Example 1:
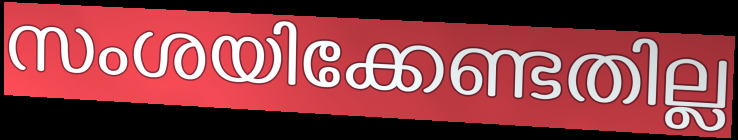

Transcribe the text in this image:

സംശയിക്കേണ്ടതില്ല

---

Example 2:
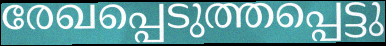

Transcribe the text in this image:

രേഖപ്പെടുത്തപ്പെട്ടു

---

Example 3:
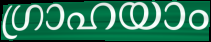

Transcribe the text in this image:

ഗ്രാഹയാം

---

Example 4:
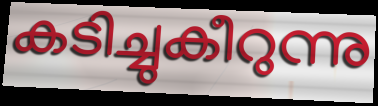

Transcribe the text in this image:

കടിച്ചുകീറുന്നു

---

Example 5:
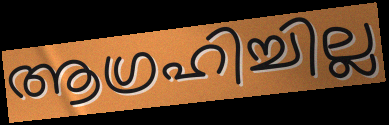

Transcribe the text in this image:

ആഗ്രഹിച്ചില്ല